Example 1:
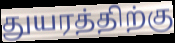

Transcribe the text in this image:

துயரத்திற்கு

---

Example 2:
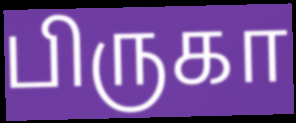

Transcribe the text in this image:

பிருகா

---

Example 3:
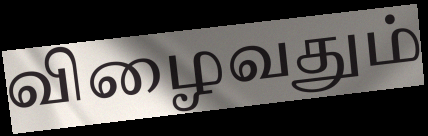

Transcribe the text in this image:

விழைவதும்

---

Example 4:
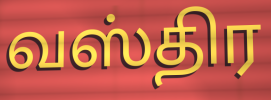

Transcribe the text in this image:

வஸ்திர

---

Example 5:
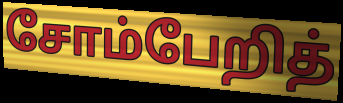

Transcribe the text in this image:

சோம்பேறித்